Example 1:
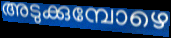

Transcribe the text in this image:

അടുക്കുമ്പോഴെ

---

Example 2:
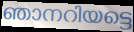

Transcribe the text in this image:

ഞാനറിയട്ടെ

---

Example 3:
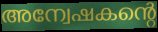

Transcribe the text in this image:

അന്വേഷകന്റെ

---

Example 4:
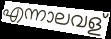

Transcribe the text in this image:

എന്നാലവള്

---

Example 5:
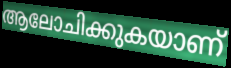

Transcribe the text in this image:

ആലോചിക്കുകയാണ്